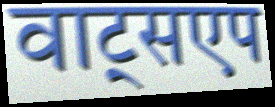
वाट्सएप